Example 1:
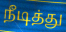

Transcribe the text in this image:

நீடித்து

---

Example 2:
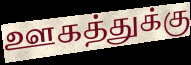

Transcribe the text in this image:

ஊகத்துக்கு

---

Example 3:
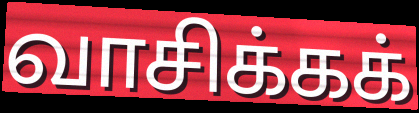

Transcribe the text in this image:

வாசிக்கக்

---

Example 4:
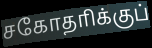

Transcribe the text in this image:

சகோதரிக்குப்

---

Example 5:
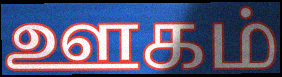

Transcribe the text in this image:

ஊகம்